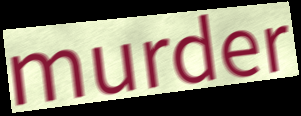
murder